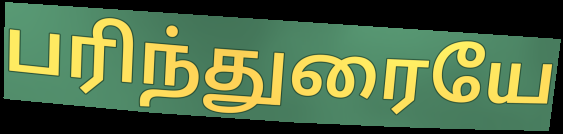
பரிந்துரையே